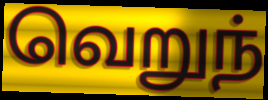
வெறுந்